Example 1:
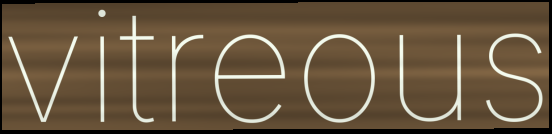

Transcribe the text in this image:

vitreous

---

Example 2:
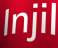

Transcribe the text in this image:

Injil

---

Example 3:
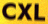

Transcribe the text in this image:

CXL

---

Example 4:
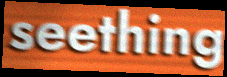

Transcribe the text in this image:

seething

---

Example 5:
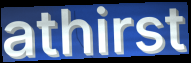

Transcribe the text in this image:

athirst